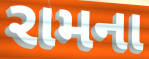
રામના